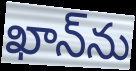
ఖాన్‌ను